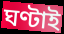
ঘণ্টাই